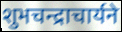
शुभचन्द्राचार्यने